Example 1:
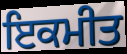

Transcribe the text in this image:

ਇਕਮੀਤ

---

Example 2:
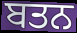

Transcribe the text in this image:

ਬਤਨ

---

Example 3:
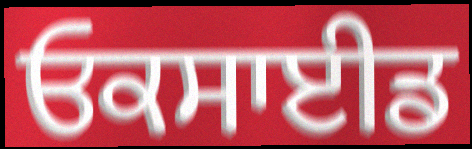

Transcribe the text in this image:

ਓਕਸਾਈਡ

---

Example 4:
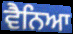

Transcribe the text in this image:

ਵੈਨਿਆ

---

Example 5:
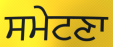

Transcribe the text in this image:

ਸਮੇਟਣਾ